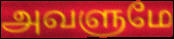
அவளுமே